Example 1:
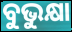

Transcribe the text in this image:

ବୁଭୁକ୍ଷା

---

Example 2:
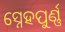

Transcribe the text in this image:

ସ୍ନେହପୁର୍ଣ୍ଣ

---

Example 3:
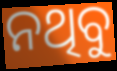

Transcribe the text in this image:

ନଥିବୁ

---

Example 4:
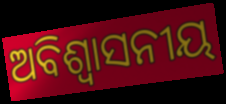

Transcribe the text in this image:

ଅବିଶ୍ୱାସନୀୟ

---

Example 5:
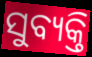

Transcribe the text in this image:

ସୁବ୍ୟକ୍ତି